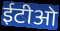
ईटीओ